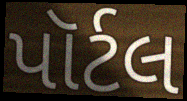
પૉર્ટલ